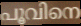
പൂവിനെ